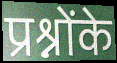
प्रश्नोंके